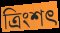
ত্ৰিংশৎ